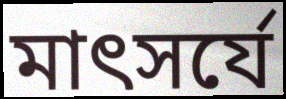
মাৎসর্যে